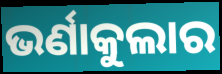
ଭର୍ଣାକୁଲାର